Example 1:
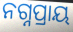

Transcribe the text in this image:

ନଗ୍ନପ୍ରାୟ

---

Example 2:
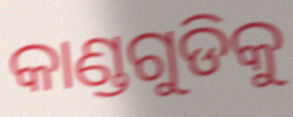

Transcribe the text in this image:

କାଣ୍ଡଗୁଡିକୁ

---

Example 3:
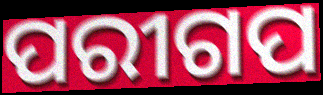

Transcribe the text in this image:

ପରୀଗପ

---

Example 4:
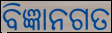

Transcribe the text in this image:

ବିଜ୍ଞାନଗତ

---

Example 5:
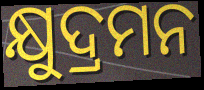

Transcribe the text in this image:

କ୍ଷୁଦ୍ରମନ